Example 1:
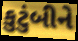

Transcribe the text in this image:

કુટુંબીને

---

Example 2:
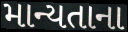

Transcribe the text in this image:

માન્યતાના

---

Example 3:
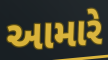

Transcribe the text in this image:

આમારે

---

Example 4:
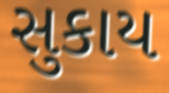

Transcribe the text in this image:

સુકાય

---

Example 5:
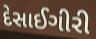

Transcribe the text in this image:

દેસાઈગીરી